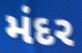
મંદર